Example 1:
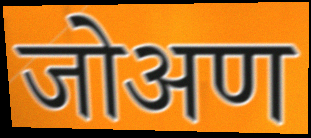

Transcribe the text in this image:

जोअण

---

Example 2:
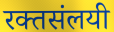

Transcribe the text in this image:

रक्तसंलयी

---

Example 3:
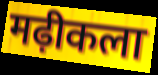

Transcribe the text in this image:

मढ़ीकला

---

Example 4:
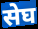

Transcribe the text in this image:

सेघ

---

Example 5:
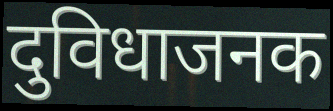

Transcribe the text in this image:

दुविधाजनक